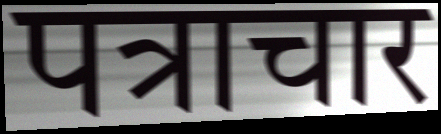
पत्राचार